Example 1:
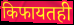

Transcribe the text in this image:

किफायतही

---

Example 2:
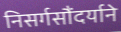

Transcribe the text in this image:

निसर्गसौंदर्याने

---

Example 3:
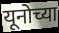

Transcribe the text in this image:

यूनोच्या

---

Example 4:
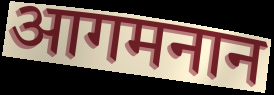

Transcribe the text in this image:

आगमनान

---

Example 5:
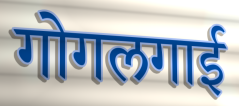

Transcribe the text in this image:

गोगलगाई